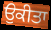
ਉਕੀਤਾ